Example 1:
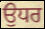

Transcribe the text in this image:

ਉਧਰ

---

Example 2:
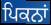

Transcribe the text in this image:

ਪਿਕਨਾਂ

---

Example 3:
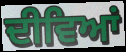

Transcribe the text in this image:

ਦੀਵਿਆਂ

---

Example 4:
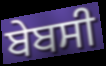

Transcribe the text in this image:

ਬੇਬਸੀ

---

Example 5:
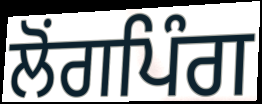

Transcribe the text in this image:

ਲੋਂਗਪਿੰਗ